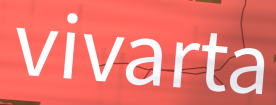
vivarta